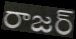
రాజర్